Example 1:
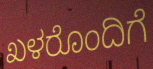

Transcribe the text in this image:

ಖಳರೊಂದಿಗೆ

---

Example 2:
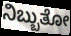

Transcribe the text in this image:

ನಿಬ್ಬುತೋ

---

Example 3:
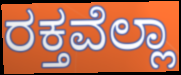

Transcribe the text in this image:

ರಕ್ತವೆಲ್ಲಾ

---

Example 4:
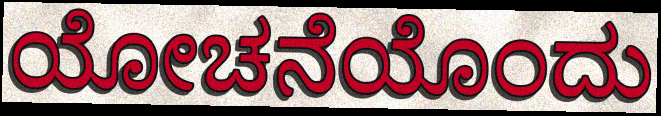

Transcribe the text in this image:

ಯೋಚನೆಯೊಂದು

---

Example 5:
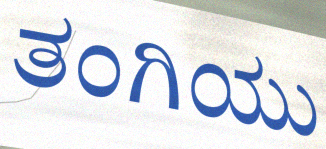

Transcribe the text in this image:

ತಂಗಿಯು